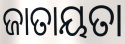
ଜାତାୟତା